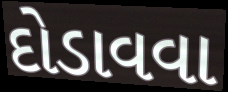
દોડાવવા